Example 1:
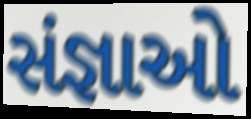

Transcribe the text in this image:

સંજ્ઞાઓ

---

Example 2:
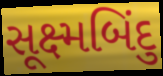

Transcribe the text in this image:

સૂક્ષ્મબિંદુ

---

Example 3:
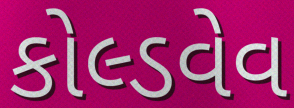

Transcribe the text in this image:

કોલ્ડવેવ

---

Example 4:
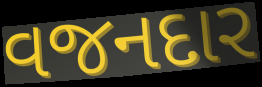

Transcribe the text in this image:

વજનદાર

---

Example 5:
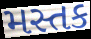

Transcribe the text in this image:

મસ્તક